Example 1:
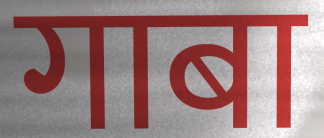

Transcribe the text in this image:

गाबा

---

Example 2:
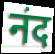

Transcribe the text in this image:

नंद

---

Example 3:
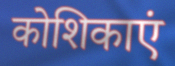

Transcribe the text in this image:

कोशिकाएं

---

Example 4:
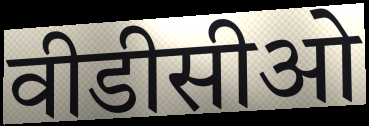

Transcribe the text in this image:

वीडीसीओ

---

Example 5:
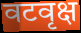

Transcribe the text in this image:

वटवृक्ष